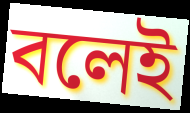
বলেই